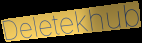
Deletekhub